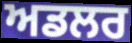
ਅਡਲਰ